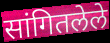
सांगितलेले